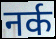
नर्क